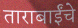
ताराबाईंचे